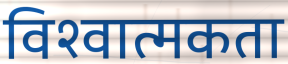
विश्वात्मकता